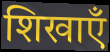
शिखाएँ